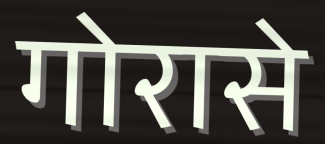
गोरासे